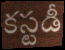
కస్టడీ